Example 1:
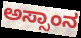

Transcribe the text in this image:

ಅಸ್ಸಾಂನ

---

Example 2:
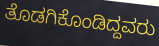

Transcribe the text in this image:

ತೊಡಗಿಕೊಂಡಿದ್ದವರು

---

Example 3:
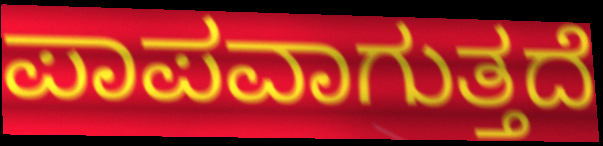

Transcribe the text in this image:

ಪಾಪವಾಗುತ್ತದೆ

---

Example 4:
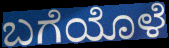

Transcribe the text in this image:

ಬಗೆಯೊಳೆ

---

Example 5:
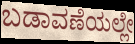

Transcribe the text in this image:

ಬಡಾವಣೆಯಲ್ಲೇ